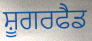
ਸ਼ੂਗਰਫੈਡ